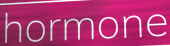
hormone